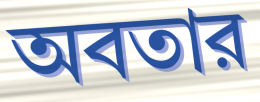
অবতার